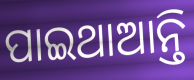
ପାଇଥାଆନ୍ତି